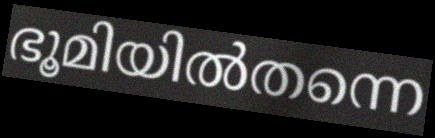
ഭൂമിയിൽതന്നെ